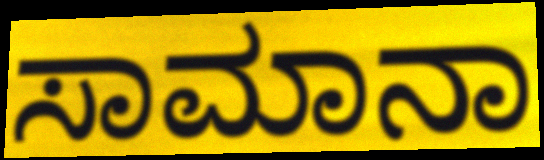
ಸಾಮಾನಾ